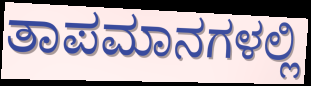
ತಾಪಮಾನಗಳಲ್ಲಿ